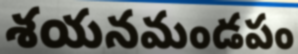
శయనమండపం